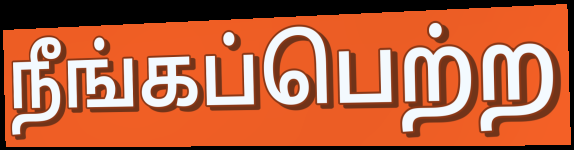
நீங்கப்பெற்ற